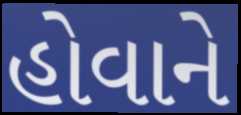
હોવાને